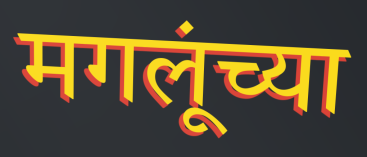
मगलूंच्या